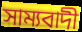
সাম্যবাদী